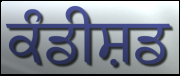
ਕੰਡੀਸ਼ਡ